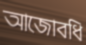
আজোবধি